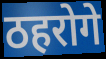
ठहरोगे